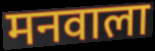
मनवाला